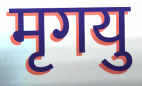
मृगयु